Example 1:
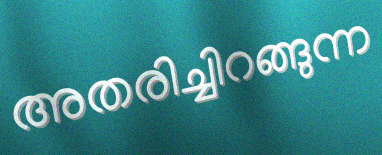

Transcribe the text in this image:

അതരിച്ചിറങ്ങുന്ന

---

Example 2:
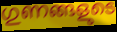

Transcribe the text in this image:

ഗുണങ്ങളുടെ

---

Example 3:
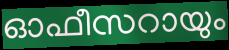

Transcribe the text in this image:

ഓഫീസറായും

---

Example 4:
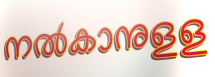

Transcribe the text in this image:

നൽകാനുളള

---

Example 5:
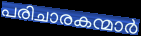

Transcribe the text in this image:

പരിചാരകന്മാർ